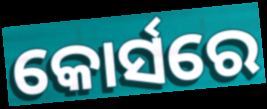
କୋର୍ସରେ